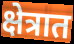
क्षेत्रात